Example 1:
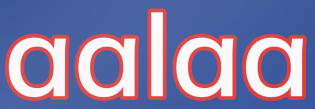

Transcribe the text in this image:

aalaa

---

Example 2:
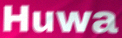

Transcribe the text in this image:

Huwa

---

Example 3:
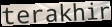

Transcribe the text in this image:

terakhir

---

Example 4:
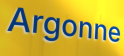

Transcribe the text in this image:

Argonne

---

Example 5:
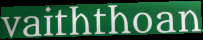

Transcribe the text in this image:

vaiththoan